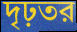
দৃঢ়তর